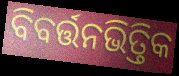
ବିବର୍ତ୍ତନଭିତ୍ତିକ